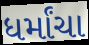
ધર્માંચા